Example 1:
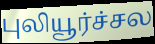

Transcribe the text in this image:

புலியூர்ச்சல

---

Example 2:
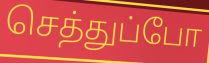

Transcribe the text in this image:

செத்துப்போ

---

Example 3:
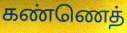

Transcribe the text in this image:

கண்ணெத்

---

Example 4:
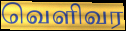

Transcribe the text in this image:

வெளிவர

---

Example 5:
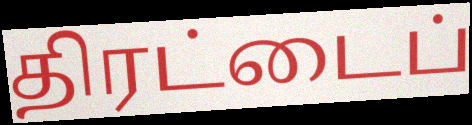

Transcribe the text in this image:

திரட்டைப்